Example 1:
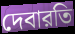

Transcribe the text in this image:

দেবারতি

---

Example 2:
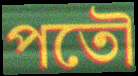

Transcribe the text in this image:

পতৌ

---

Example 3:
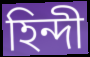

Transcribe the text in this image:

হিন্দী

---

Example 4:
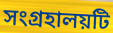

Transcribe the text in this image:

সংগ্রহালয়টি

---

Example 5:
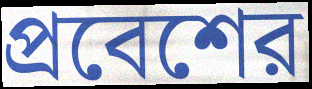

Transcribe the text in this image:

প্রবেশের